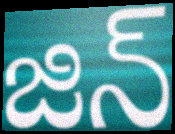
జిన్